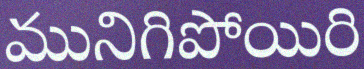
మునిగిపోయిరి